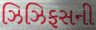
ઝિઝિફસની